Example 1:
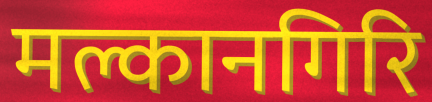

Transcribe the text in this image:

मल्कानगिरि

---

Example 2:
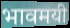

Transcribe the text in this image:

भावमयी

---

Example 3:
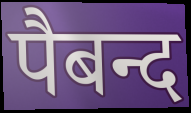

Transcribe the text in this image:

पैबन्द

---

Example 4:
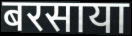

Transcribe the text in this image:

बरसाया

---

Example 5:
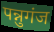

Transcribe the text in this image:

पन्नुगंज